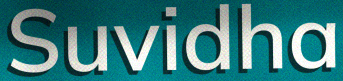
Suvidha